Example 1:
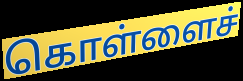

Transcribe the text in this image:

கொள்ளைச்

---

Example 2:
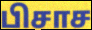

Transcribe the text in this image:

பிசாச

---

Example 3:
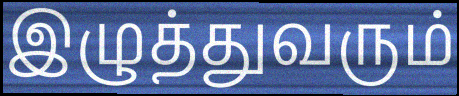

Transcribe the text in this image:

இழுத்துவரும்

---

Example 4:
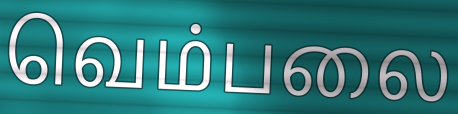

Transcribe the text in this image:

வெம்பலை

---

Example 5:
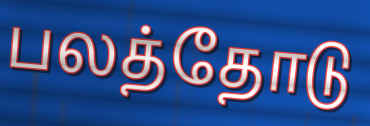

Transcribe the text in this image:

பலத்தோடு